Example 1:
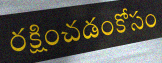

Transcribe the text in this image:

రక్షించడంకోసం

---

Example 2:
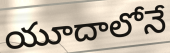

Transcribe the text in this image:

యూదాలోనే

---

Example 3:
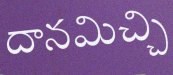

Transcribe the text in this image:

దానమిచ్చి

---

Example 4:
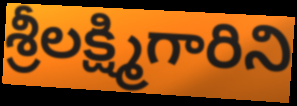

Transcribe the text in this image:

శ్రీలక్ష్మిగారిని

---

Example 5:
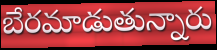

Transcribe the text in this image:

బేరమాడుతున్నారు